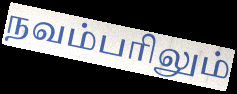
நவம்பரிலும்